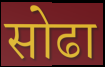
सोढा